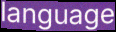
language